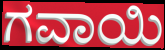
ಗವಾಯಿ